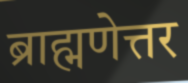
ब्राह्मणेत्तर